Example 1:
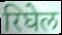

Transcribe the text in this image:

रिघेल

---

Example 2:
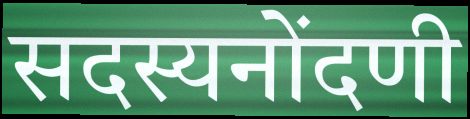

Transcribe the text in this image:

सदस्यनोंदणी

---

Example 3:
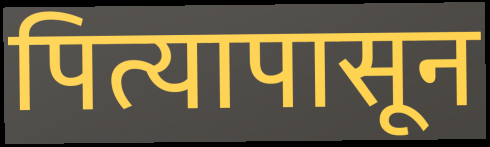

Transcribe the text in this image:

पित्यापासून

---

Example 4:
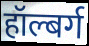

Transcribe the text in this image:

हॉल्बर्ग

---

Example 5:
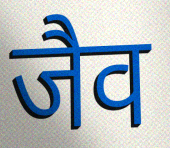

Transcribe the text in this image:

जैव